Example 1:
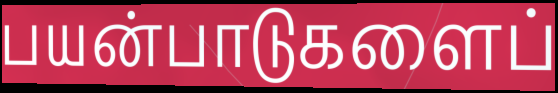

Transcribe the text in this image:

பயன்பாடுகளைப்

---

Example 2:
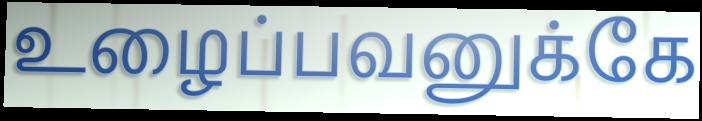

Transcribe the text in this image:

உழைப்பவனுக்கே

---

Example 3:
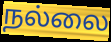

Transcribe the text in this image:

நல்லை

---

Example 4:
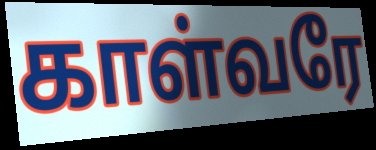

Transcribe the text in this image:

காள்வரே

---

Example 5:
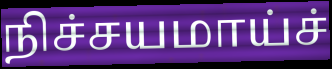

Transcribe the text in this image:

நிச்சயமாய்ச்